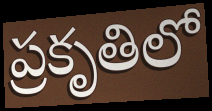
ప్రకృతిలో